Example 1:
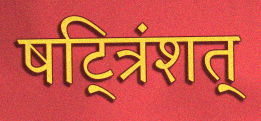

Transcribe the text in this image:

षट्त्रिंशत्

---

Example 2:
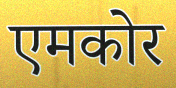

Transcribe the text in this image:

एमकोर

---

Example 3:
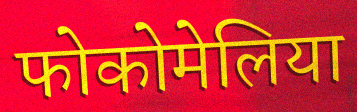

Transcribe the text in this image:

फोकोमेलिया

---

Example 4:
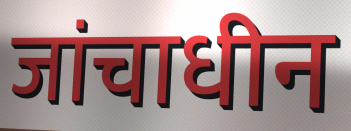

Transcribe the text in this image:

जांचाधीन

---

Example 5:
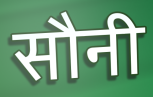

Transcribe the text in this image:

सौनी